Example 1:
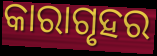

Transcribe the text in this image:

କାରାଗୃହର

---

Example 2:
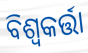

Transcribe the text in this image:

ବିଶ୍ୱକର୍ତ୍ତା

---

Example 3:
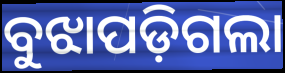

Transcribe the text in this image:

ବୁଝାପଡ଼ିଗଲା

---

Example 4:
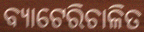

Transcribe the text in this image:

ବ୍ୟାଟେରିଚାଳିତ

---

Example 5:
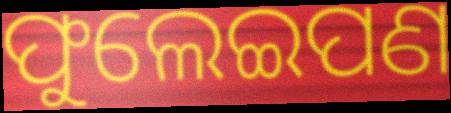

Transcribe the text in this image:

ଫୁଲେଇପଣ